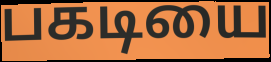
பகடியை